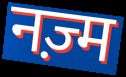
नज़्म